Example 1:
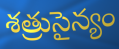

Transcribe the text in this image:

శత్రుసైన్యం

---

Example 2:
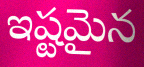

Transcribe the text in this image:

ఇష్టమైన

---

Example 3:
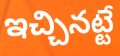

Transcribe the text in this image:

ఇచ్చినట్టే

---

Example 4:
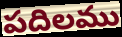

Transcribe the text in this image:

పదిలము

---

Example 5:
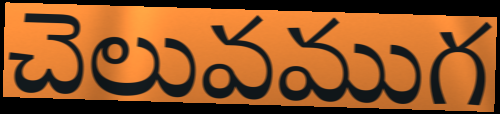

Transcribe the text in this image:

చెలువముగ